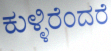
ಕುಳ್ಳಿರೆಂದರೆ